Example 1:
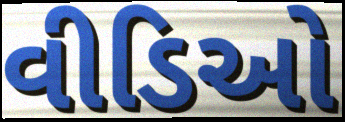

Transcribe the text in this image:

વીડિઓ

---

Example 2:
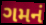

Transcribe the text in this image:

ગમનં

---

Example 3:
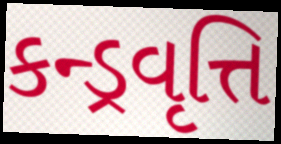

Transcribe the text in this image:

કન્ડ્રવૃત્તિ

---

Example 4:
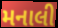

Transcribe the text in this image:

મનાલી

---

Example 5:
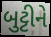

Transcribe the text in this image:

બુટ્ટીને